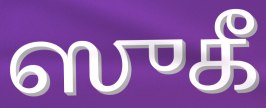
ஸுகீ